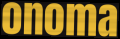
onoma